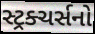
સ્ટ્રક્ચર્સનો